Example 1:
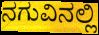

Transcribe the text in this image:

ನಗುವಿನಲ್ಲಿ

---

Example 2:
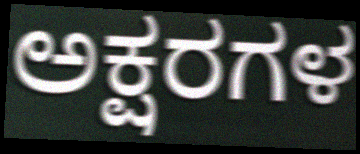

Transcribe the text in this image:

ಅಕ್ಷರಗಳ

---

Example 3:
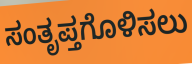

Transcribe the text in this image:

ಸಂತೃಪ್ತಗೊಳಿಸಲು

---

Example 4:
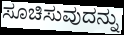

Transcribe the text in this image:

ಸೂಚಿಸುವುದನ್ನು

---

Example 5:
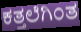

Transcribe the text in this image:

ಕತ್ತಲೆಗಿಂತ